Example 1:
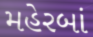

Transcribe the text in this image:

મહેરબાં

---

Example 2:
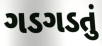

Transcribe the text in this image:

ગડગડતું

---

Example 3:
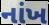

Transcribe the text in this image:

નાંખ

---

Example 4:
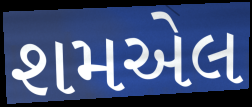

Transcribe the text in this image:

શમએલ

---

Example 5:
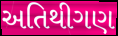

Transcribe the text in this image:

અતિથીગણ